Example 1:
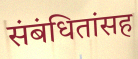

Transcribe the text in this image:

संबंधितांसह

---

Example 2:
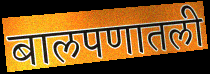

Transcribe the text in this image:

बालपणातली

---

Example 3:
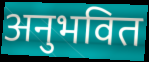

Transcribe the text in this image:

अनुभवित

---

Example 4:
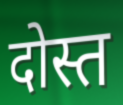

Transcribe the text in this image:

दोस्त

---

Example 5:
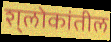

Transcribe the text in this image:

श्लोकांतील